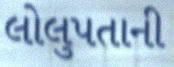
લોલુપતાની